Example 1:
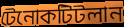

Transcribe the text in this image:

টেনোকটিটলান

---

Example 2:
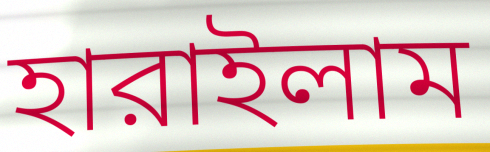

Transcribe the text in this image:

হারাইলাম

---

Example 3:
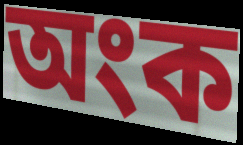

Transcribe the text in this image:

অংক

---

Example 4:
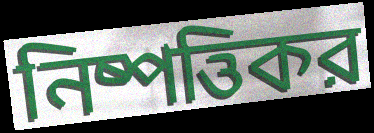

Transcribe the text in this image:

নিষ্পত্তিকর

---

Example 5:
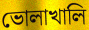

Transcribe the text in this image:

ভোলাখালি